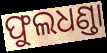
ଫୁଲଧଣ୍ଡା